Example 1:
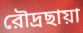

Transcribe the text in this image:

রৌদ্রছায়া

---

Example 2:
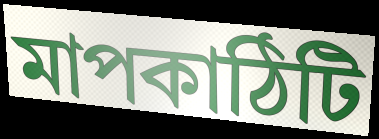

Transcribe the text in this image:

মাপকাঠিটি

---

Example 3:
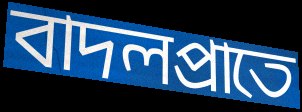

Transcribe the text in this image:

বাদলপ্রাতে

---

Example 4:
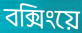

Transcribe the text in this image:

বক্সিংয়ে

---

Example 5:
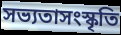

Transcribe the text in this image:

সভ্যতাসংস্কৃতি